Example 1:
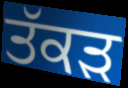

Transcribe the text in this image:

ਤੱਕੜ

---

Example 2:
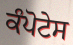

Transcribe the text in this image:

ਕੰਪੋਟੇਸ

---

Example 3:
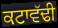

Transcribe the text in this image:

ਕਟਾਵੱਢੀ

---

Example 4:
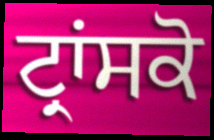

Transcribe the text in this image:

ਟ੍ਰਾਂਸਕੋ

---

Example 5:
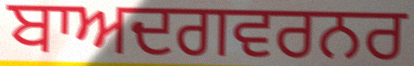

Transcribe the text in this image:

ਬਾਅਦਗਵਰਨਰ